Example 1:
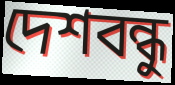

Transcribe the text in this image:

দেশবন্ধু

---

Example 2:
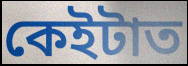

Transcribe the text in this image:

কেইটাত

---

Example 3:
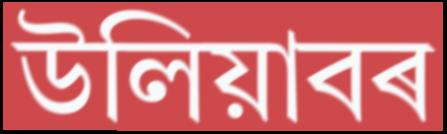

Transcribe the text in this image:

উলিয়াবৰ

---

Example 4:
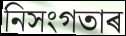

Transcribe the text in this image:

নিসংগতাৰ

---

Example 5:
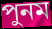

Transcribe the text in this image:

পুনম